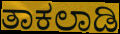
ತಾಕಲಾಡಿ